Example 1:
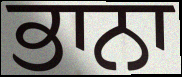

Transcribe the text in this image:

ਭਾਨਾ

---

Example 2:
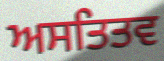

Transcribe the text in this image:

ਅਸਤਿਤਵ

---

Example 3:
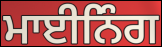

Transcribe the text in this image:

ਮਾਈਨਿੰਗ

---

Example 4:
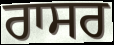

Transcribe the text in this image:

ਰਾਸਰ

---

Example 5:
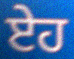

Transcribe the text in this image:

ਏਹ